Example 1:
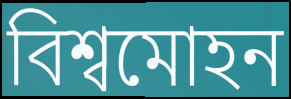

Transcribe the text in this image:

বিশ্বমোহন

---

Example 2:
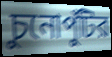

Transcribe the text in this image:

চুনোপুঁটির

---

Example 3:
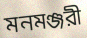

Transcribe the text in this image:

মনমঞ্জরী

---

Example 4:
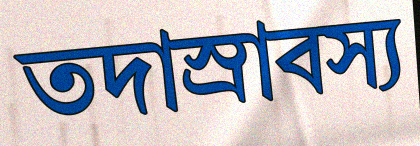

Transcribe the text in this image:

তদাস্রাবস্য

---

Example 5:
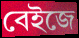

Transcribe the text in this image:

বেইজে